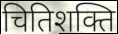
चितिशक्ति